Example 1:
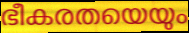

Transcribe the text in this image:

ഭീകരതയെയും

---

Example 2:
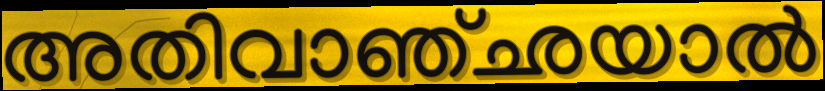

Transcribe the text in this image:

അതിവാഞ്ഛയാൽ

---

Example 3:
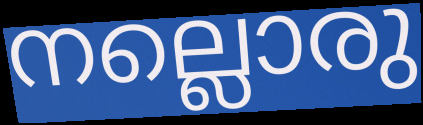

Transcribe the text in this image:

നല്ലൊരു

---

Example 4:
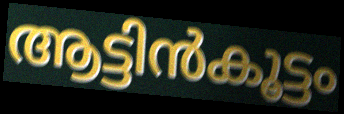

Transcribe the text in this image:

ആട്ടിൻകൂട്ടം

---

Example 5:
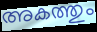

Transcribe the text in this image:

അകത്തും